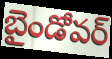
బైండోవర్